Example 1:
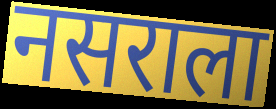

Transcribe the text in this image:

नसराला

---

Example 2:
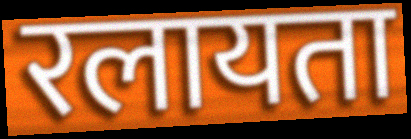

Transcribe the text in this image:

रलायता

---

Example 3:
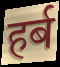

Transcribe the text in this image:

हर्ब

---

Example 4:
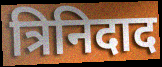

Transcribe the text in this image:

त्रिनिदाद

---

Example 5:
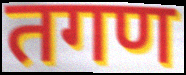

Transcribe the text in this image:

तगण